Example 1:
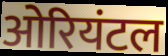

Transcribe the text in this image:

ओरियंटल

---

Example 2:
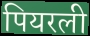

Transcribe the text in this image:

पियरली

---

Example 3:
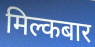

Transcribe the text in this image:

मिल्कबार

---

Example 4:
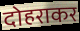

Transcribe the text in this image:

दोहराकर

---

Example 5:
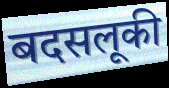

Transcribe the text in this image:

बदसलूकी